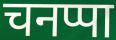
चनप्पा